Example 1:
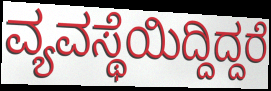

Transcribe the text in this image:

ವ್ಯವಸ್ಥೆಯಿದ್ದಿದ್ದರೆ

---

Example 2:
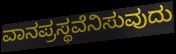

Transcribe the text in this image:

ವಾನಪ್ರಸ್ಥವೆನಿಸುವುದು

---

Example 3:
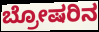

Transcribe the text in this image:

ಬ್ರೋಷರಿನ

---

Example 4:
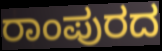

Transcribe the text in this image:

ರಾಂಪುರದ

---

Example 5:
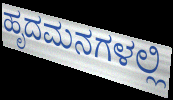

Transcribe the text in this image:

ಹೃದಮನಗಳಲ್ಲಿ